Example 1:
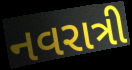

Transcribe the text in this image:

નવરાત્રી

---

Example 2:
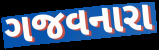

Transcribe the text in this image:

ગજવનારા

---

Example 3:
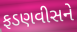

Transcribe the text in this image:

ફડણવીસને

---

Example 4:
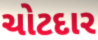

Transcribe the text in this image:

ચોટદાર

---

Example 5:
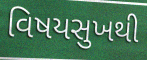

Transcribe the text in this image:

વિષયસુખથી